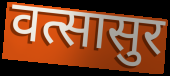
वत्सासुर